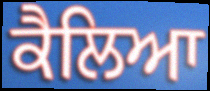
ਕੈਲਿਆ